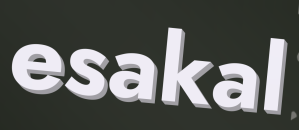
esakal